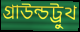
গ্রাউন্ডট্রুথ